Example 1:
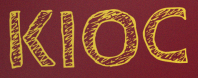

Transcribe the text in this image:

KIOC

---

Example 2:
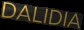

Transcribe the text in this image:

DALIDIA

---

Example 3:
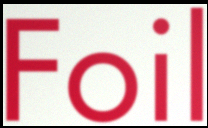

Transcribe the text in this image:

Foil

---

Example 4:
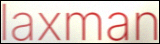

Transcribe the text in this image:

laxman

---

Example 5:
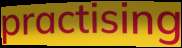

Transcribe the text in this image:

practising